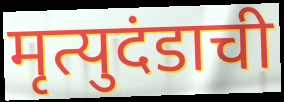
मृत्युदंडाची